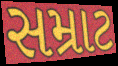
સમ્રાટ